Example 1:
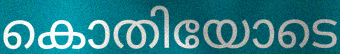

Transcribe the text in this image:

കൊതിയോടെ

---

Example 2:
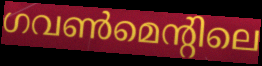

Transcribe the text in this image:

ഗവൺമെന്റിലെ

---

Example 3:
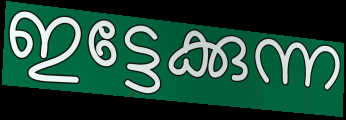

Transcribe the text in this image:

ഇട്ടേക്കുന്ന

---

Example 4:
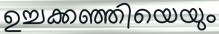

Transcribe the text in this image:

ഉച്ചക്കഞ്ഞിയെയും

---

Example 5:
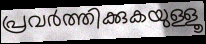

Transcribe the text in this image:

പ്രവർത്തിക്കുകയുള്ളൂ